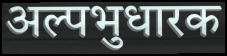
अल्पभुधारक